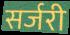
सर्जरी